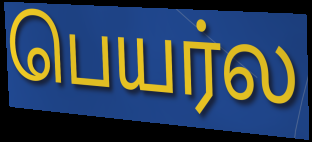
பெயர்ல